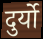
दुर्यो